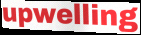
upwelling